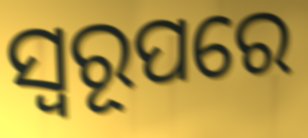
ସ୍ଵରୂପରେ